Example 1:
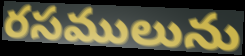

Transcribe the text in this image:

రసములును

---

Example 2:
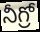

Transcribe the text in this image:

నీగ్రో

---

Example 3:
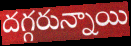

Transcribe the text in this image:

దగ్గరున్నాయి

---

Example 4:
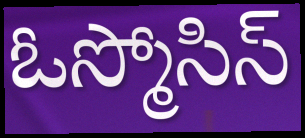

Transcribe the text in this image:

ఓస్మోసిస్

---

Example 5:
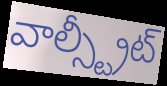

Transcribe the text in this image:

వాల్స్ట్రీట్